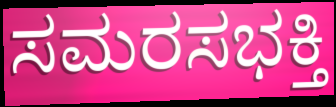
ಸಮರಸಭಕ್ತಿ